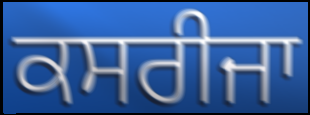
ਕਸਰੀਜਾ